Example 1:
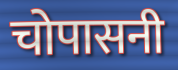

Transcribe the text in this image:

चोपासनी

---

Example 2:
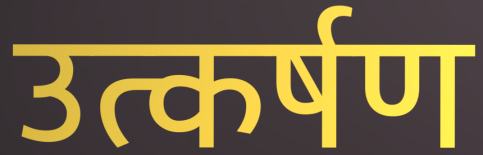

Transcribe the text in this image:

उत्कर्षण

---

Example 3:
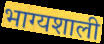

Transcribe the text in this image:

भाग्यशाली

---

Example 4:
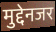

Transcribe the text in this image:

मुद्देनजर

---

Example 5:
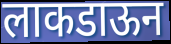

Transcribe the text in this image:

लाकडाऊन